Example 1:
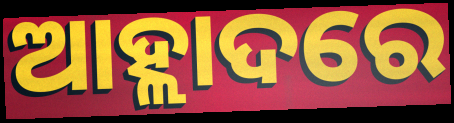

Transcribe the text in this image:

ଆହ୍ଲାଦରେ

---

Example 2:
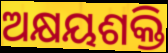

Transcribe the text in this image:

ଅକ୍ଷୟଶକ୍ତି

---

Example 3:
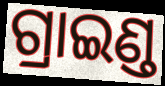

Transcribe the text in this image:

ଗ୍ରାଇଣ୍ଡ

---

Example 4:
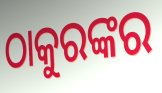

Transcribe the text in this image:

ଠାକୁରଙ୍କର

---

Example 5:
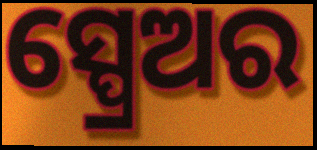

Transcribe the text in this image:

ସ୍ପ୍ରେଅର